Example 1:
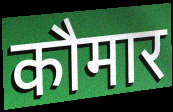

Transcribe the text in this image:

कौमार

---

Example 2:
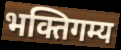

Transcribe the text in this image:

भक्तिगम्य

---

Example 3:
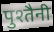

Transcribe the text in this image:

पुश्तैनी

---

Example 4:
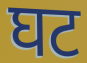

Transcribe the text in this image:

घट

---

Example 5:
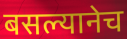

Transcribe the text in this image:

बसल्यानेच